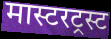
मास्टरट्रस्ट